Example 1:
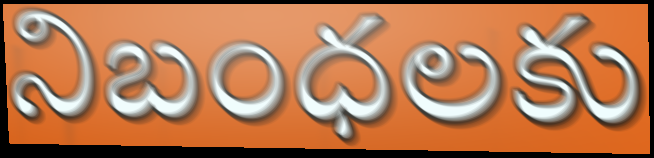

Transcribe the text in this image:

నిబంధలకు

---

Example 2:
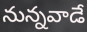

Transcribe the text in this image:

నున్నవాడే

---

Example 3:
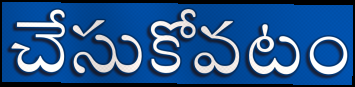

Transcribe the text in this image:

చేసుకోవటం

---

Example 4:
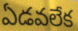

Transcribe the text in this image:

ఏడవలేక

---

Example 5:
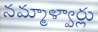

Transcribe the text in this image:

నమ్మాళ్వార్లు